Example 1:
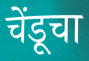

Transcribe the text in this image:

चेंडूचा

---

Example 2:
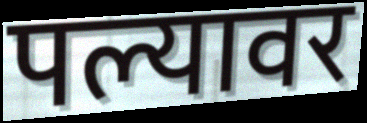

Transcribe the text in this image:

पल्यावर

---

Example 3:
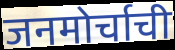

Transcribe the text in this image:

जनमोर्चाची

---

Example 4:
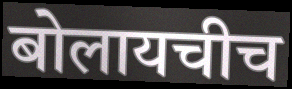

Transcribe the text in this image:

बोलायचीच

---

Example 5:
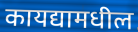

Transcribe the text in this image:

कायद्यामधील